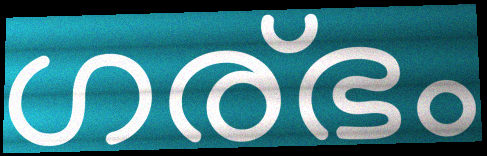
ഗര്ഭം